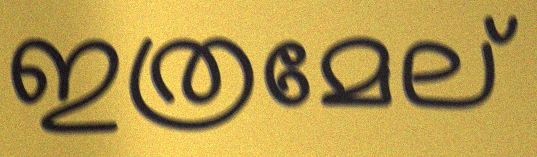
ഇത്രമേല്